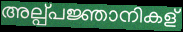
അല്പ്പജ്ഞാനികള്